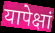
यापेक्षां